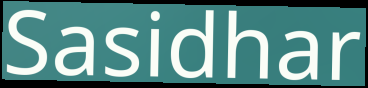
Sasidhar